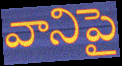
వానిపై